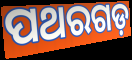
ପଥରଗଡ଼